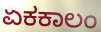
ಏಕಕಾಲಂ